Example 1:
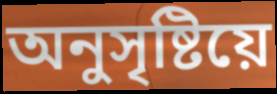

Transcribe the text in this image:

অনুসৃষ্টিয়ে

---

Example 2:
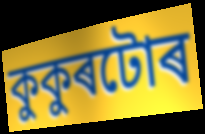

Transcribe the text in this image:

কুকুৰটোৰ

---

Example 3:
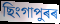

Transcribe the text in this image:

ছিংগাপুৰৰ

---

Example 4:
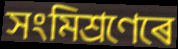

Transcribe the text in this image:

সংমিশ্ৰণেৰে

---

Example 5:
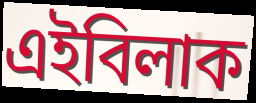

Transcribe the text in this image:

এইবিলাক